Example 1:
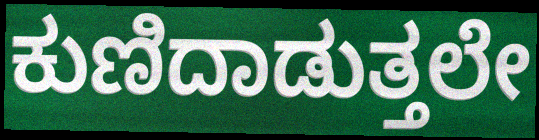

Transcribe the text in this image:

ಕುಣಿದಾಡುತ್ತಲೇ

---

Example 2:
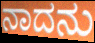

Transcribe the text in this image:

ನಾದನು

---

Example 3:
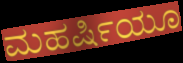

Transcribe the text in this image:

ಮಹರ್ಷಿಯೂ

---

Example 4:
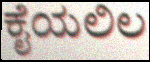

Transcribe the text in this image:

ಕೈಯಲಿಲ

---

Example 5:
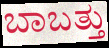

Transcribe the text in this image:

ಬಾಬತ್ತು